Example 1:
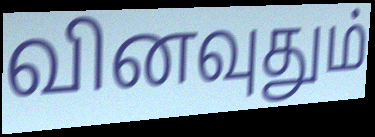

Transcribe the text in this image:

வினவுதும்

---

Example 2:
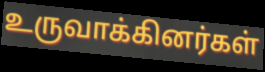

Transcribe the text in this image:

உருவாக்கினர்கள்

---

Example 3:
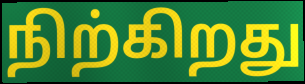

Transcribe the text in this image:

நிற்கிறது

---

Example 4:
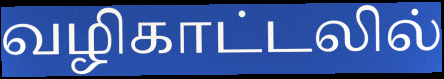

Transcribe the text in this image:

வழிகாட்டலில்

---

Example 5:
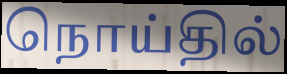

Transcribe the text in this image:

நொய்தில்